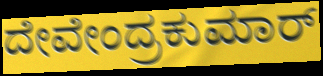
ದೇವೇಂದ್ರಕುಮಾರ್